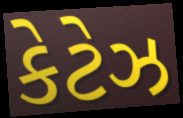
કેટેઝ